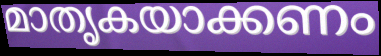
മാതൃകയാക്കണം